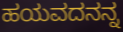
ಹಯವದನನ್ನ